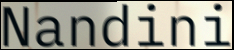
Nandini